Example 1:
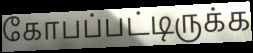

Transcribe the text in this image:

கோபப்பட்டிருக்க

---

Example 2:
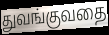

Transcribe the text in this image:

துவங்குவதை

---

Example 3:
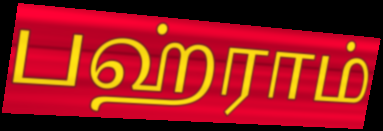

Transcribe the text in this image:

பஹ்ராம்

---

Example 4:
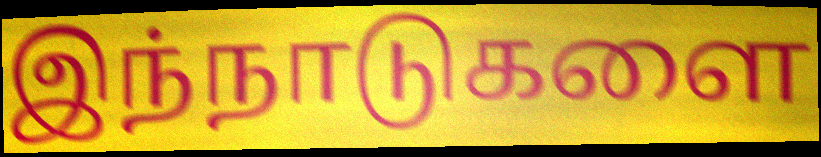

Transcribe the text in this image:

இந்நாடுகளை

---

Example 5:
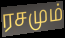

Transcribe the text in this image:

ரசமும்